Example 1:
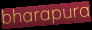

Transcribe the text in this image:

bharapura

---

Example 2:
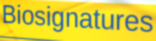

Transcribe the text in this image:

Biosignatures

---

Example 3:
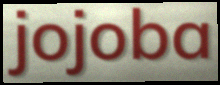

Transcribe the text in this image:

jojoba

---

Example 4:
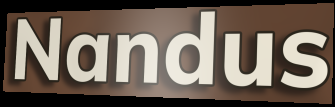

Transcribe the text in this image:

Nandus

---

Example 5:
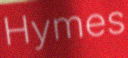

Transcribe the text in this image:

Hymes